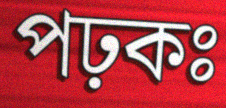
পঢ়কঃ